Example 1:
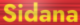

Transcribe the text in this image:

Sidana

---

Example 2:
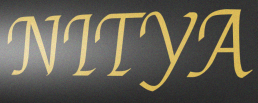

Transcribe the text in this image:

NITYA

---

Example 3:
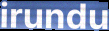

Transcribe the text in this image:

irundu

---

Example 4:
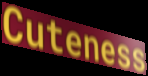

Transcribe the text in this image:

Cuteness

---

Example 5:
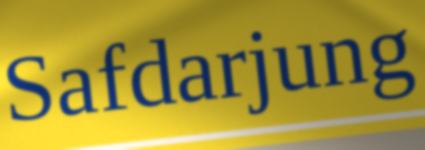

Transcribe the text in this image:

Safdarjung